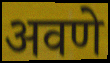
अवणे